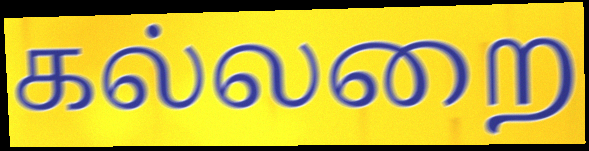
கல்லறை